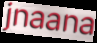
jnaana